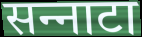
सन्‍नाटा